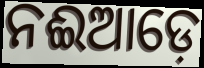
ନଈଆଡ଼େ